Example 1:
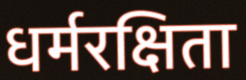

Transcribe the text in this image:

धर्मरक्षिता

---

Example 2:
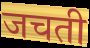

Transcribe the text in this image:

जचती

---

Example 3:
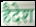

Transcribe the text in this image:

हैदेश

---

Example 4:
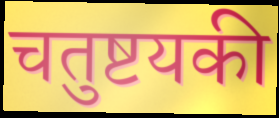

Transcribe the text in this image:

चतुष्टयकी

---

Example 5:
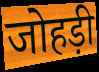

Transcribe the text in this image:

जोहड़ी